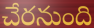
చేరనుంది